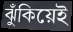
ঝুঁকিয়েই